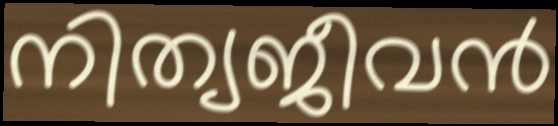
നിത്യജീവൻ